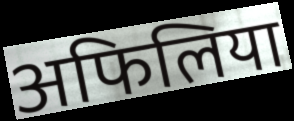
अफिलिया